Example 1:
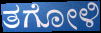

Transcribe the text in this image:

ತಗೋಳಿ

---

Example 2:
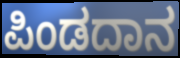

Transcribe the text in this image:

ಪಿಂಡದಾನ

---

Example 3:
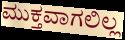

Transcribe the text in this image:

ಮುಕ್ತವಾಗಲಿಲ್ಲ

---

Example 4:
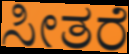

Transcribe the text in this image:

ಸೀತರೆ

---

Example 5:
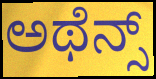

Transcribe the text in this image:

ಅಥೆನ್ಸ್